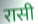
रासी